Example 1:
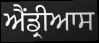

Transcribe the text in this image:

ਐਂਡ੍ਰੀਆਸ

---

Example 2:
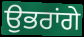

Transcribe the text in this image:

ਉਭਰਾਂਗੇ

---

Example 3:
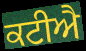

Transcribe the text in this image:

ਕਟੀਐ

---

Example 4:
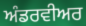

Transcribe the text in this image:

ਅੰਡਰਵੀਅਰ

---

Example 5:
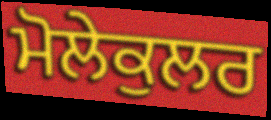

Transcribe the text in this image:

ਮੋਲੇਕੁਲਰ